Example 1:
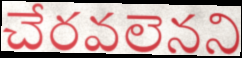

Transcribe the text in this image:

చేరవలెనని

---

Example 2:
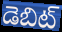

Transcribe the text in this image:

డెబిట్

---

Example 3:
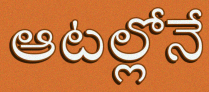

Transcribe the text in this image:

ఆటల్లోనే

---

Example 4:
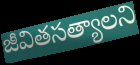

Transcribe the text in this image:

జీవితసత్యాలని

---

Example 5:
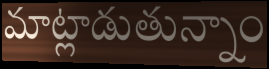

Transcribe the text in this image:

మాట్లాడుతున్నాం